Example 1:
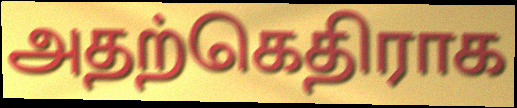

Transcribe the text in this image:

அதற்கெதிராக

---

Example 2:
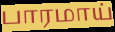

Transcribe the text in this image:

பாரமாய்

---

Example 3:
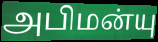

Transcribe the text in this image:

அபிமன்யு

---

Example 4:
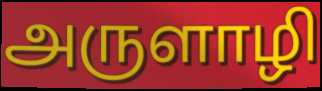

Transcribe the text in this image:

அருளாழி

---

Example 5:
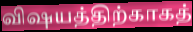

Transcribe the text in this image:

விஷயத்திற்காகத்